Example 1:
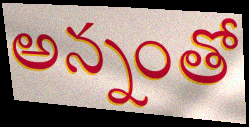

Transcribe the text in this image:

అన్నంతో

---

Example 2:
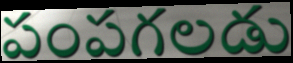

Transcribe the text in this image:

పంపగలడు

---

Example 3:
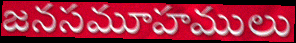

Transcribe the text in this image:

జనసమూహములు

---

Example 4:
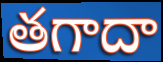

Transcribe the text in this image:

తగాదా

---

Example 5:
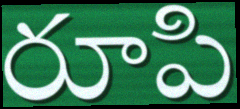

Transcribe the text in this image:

రూపి